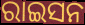
ରାଇସନ